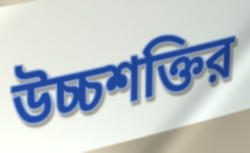
উচ্চশক্তির